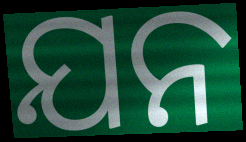
ଯନ